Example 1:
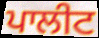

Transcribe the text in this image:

ਪਾਲੀਟ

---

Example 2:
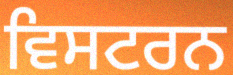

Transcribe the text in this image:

ਵਿਸਟਰਨ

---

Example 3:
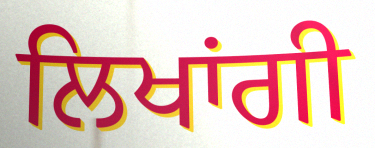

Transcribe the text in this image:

ਲਿਖਾਂਗੀ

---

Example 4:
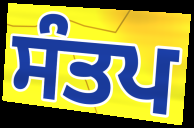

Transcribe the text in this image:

ਸੰਤਪ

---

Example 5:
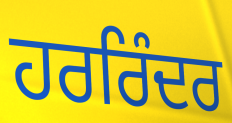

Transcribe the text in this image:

ਹਰਰਿੰਦਰ